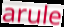
arule